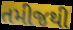
તમીજથી